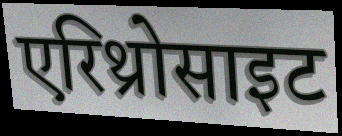
एरिथ्रोसाइट